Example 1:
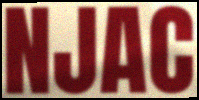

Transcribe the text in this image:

NJAC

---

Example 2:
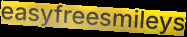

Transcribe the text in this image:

easyfreesmileys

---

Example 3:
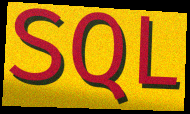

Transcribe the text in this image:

SQL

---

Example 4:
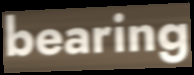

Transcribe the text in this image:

bearing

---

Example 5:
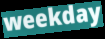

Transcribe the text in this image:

weekday